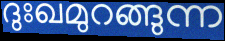
ദുഃഖമുറങ്ങുന്ന